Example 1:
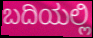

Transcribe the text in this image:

ಬದಿಯಲ್ಲಿ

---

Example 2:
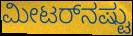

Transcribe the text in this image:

ಮೀಟರ್‌ನಷ್ಟು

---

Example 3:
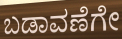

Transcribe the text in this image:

ಬಡಾವಣೆಗೇ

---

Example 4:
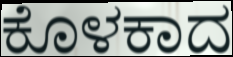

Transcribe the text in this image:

ಕೊಳಕಾದ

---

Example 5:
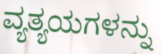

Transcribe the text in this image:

ವ್ಯತ್ಯಯಗಳನ್ನು